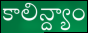
కాలిన్ద్యాం